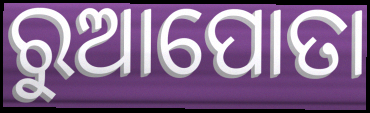
ରୁଆପୋତା